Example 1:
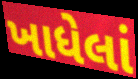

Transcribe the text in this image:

ખાધેલાં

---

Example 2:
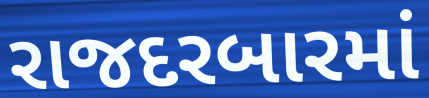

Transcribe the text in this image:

રાજદરબારમાં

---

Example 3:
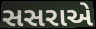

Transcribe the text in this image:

સસરાએ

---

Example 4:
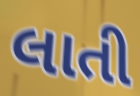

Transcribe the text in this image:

લાતી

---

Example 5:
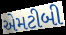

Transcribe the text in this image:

એમટીબી